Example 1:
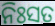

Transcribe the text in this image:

ନିଃସତ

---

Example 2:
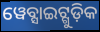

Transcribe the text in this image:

ୱେବ୍ସାଇଟ୍ଗୁଡ଼ିକ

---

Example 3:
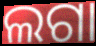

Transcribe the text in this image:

ଲଗା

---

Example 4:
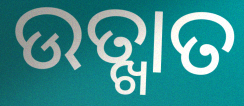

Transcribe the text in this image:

ଉତ୍ଖାତ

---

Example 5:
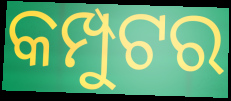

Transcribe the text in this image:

କମ୍ପୁଟର